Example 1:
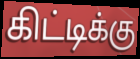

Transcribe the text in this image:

கிட்டிக்கு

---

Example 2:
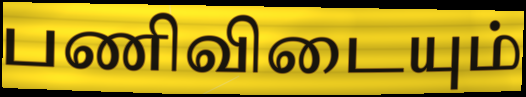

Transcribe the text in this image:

பணிவிடையும்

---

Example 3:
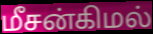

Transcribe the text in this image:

மீசன்கிமல்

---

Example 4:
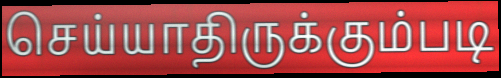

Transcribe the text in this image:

செய்யாதிருக்கும்படி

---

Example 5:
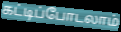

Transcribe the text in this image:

கட்டிப்போடலாம்